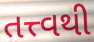
તત્ત્વથી